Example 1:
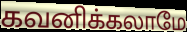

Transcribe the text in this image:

கவனிக்கலாமே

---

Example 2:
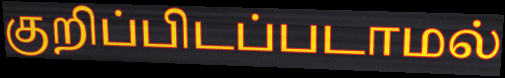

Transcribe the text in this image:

குறிப்பிடப்படாமல்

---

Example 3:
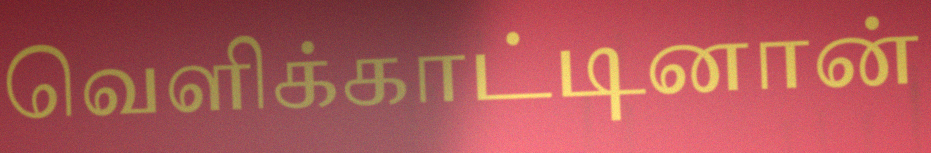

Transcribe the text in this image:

வெளிக்காட்டினான்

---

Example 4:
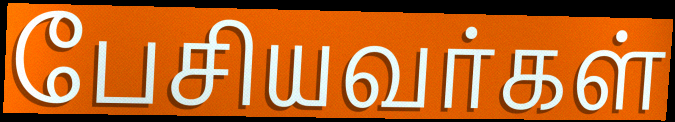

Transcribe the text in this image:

பேசியவர்கள்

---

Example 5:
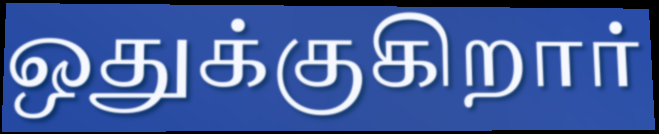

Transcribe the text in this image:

ஒதுக்குகிறார்